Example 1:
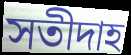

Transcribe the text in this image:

সতীদাহ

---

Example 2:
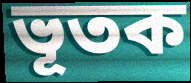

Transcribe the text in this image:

ভূতক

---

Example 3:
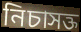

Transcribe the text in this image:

নিচাসক্ত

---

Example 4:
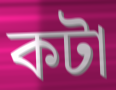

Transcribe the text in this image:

কটা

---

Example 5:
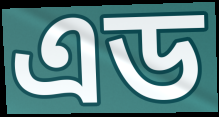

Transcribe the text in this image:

এড